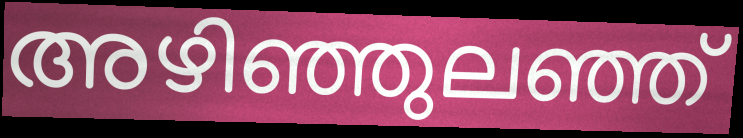
അഴിഞ്ഞുലഞ്ഞ്